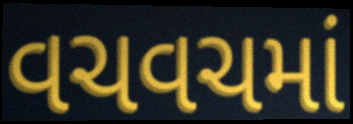
વચવચમાં